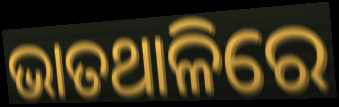
ଭାତଥାଳିରେ